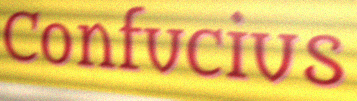
Confucius